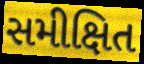
સમીક્ષિત